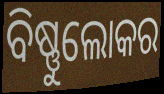
ବିଷ୍ଣୁଲୋକର